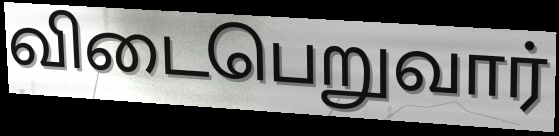
விடைபெறுவார்